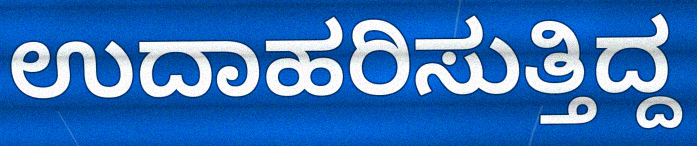
ಉದಾಹರಿಸುತ್ತಿದ್ದ